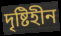
দৃষ্টিহীন